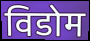
विडोम